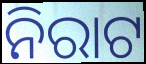
ନିରାଟ